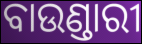
ବାଉଣ୍ଡାରୀ